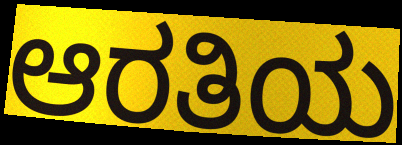
ಆರತಿಯ